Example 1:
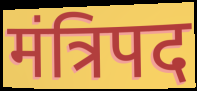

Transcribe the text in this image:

मंत्रिपद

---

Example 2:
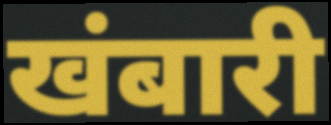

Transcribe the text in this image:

खंबारी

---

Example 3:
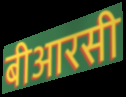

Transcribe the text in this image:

बीआरसी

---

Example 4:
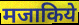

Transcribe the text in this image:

मजाकिये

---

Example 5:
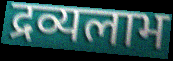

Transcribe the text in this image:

द्रव्यलाभ